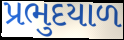
પ્રભુદયાળ